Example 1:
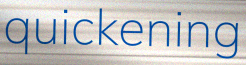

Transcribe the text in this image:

quickening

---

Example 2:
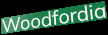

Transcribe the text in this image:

Woodfordia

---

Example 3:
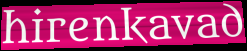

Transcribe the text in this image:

hirenkavad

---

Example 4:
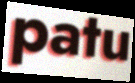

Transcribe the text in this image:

patu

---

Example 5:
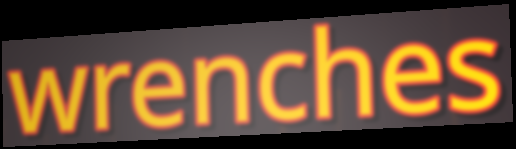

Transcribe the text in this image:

wrenches